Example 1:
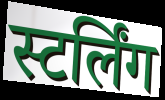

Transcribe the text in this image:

स्टर्लिंग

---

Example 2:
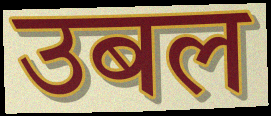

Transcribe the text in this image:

उबल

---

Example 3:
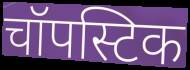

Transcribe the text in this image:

चॉपस्टिक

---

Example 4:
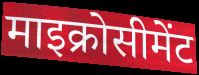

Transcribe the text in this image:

माइक्रोसीमेंट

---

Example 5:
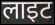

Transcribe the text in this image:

लाइट